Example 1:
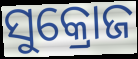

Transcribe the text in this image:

ସୁକ୍ରୋଜ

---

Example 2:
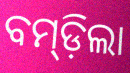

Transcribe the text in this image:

ବମ୍‍ଡ଼ିଲା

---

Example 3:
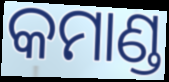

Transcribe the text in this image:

କମାଣ୍ଡ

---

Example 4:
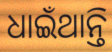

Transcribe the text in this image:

ଧାଇଁଥାନ୍ତି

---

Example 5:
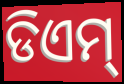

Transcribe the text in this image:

ଡିଏମ୍